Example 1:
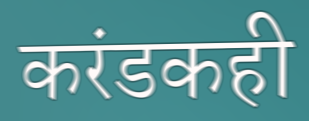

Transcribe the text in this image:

करंडकही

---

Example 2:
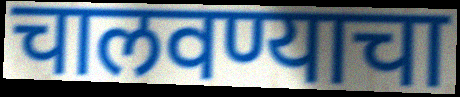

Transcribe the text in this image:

चालवण्याचा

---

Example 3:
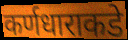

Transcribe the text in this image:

कर्णधाराकडे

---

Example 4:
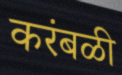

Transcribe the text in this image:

करंबळी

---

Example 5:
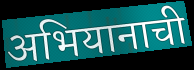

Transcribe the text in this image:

अभियानाची